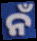
ନଁ